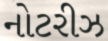
નોટરીઝ